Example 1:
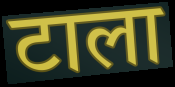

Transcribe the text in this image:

टाला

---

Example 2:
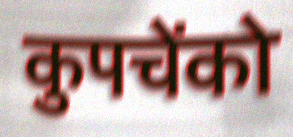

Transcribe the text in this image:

कुपचेंको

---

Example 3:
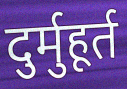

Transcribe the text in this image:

दुर्मुहूर्त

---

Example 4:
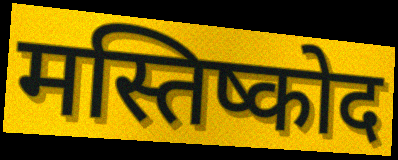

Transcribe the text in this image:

मस्तिष्कोद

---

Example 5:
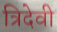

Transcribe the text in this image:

त्रिदेवी